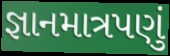
જ્ઞાનમાત્રપણું